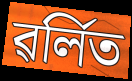
ৱৰ্লিত